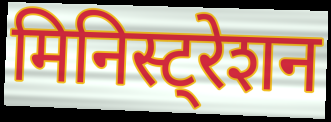
मिनिस्ट्रेशन